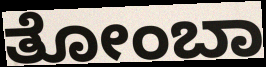
ತೋಂಬಾ